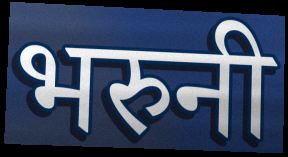
भरुनी